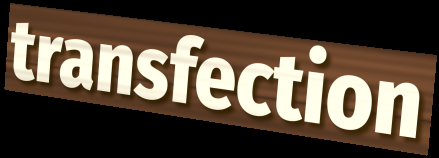
transfection